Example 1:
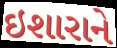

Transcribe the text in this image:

ઇશારાને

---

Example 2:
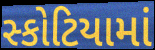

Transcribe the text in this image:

સ્કોટિયામાં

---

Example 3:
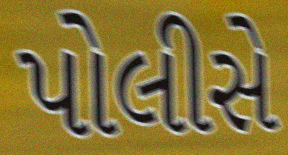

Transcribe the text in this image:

પોલીસે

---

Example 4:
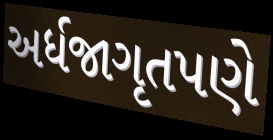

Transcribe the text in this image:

અર્ધજાગૃતપણે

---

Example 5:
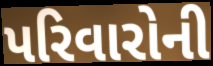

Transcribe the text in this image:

પરિવારોની